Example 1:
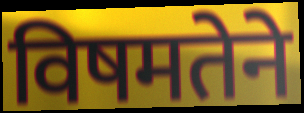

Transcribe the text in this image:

विषमतेने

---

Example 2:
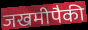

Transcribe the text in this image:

जखमीपैकी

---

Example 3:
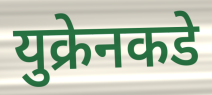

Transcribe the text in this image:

युक्रेनकडे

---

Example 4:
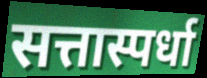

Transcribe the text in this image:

सत्तास्पर्धा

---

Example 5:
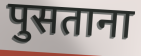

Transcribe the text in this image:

पुसताना